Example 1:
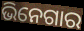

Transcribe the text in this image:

ଭିନେଗାର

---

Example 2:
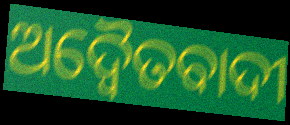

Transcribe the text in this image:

ଅଦ୍ୱୈତବାଦୀ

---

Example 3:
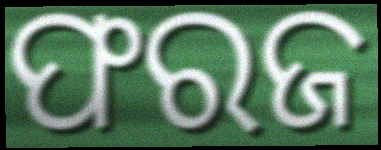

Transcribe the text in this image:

ଫରଜ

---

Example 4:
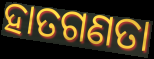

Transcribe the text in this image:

ହାତଗଣତା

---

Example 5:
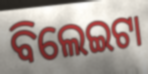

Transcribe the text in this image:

ବିଲେଇଟା